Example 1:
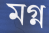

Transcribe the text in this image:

মগ্ন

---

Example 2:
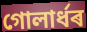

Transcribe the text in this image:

গোলাৰ্ধৰ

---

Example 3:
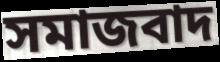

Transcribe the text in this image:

সমাজবাদ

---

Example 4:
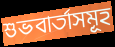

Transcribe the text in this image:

শুভবাৰ্তাসমূহ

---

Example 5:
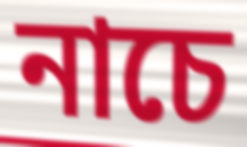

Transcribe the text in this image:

নাচে